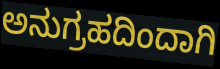
ಅನುಗ್ರಹದಿಂದಾಗಿ